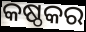
କଷ୍ଠକର